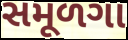
સમૂળગા